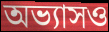
অভ্যাসও